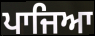
ਪਾਜਿਆ